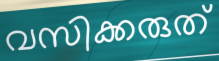
വസിക്കരുത്